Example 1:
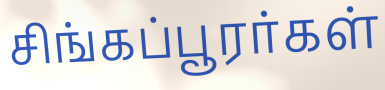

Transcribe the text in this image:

சிங்கப்பூரர்கள்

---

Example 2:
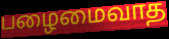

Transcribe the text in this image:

பழைமைவாத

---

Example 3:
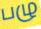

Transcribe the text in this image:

பழு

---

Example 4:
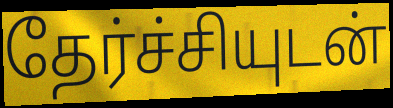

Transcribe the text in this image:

தேர்ச்சியுடன்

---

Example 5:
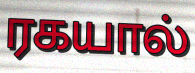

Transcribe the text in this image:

ரகயால்